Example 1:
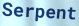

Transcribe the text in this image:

Serpent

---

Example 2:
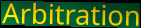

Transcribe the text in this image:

Arbitration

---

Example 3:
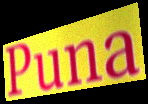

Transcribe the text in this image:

Puna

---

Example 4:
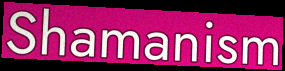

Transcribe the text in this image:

Shamanism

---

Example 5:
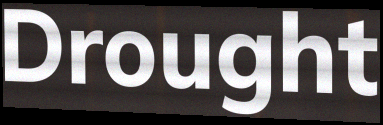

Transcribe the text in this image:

Drought